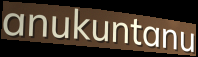
anukuntanu